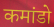
कमांडो